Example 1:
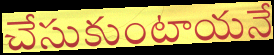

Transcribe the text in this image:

చేసుకుంటాయనే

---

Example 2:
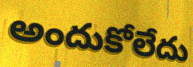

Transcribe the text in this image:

అందుకోలేదు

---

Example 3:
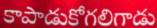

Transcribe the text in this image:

కాపాడుకోగలిగాడు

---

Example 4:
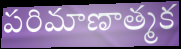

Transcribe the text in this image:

పరిమాణాత్మక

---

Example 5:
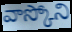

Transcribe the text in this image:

వాస్కోని